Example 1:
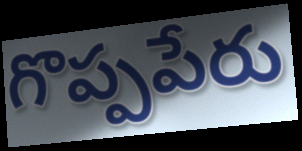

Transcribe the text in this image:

గొప్పపేరు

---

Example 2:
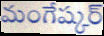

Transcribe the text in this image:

మంగేష్కర్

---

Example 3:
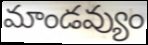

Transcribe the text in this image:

మాండవ్యుం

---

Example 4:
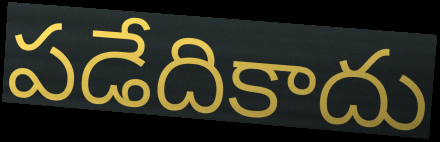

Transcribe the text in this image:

పడేదికాదు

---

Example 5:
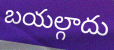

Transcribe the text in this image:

బయల్గాదు